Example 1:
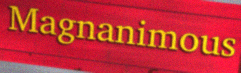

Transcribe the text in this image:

Magnanimous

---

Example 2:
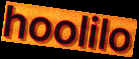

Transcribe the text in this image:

hoolilo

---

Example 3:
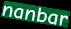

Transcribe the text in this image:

nanbar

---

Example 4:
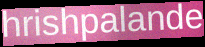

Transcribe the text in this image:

hrishpalande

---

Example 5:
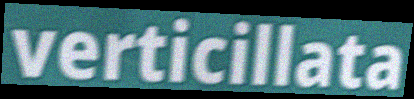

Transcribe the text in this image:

verticillata